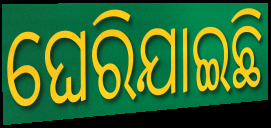
ଘେରିଯାଇଛି